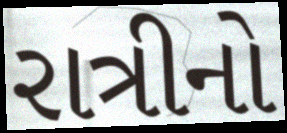
રાત્રીનો